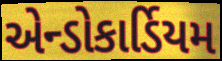
એન્ડોકાર્ડિયમ